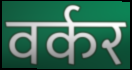
वर्कर